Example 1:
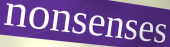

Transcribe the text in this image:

nonsenses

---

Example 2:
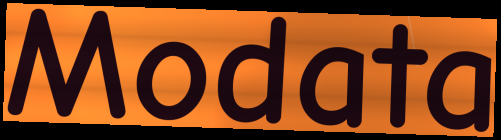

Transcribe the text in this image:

Modata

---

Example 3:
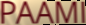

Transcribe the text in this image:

PAAMI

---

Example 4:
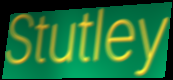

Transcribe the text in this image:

Stutley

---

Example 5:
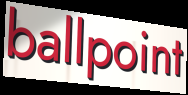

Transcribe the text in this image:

ballpoint